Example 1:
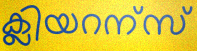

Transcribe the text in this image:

ക്ലിയറന്സ്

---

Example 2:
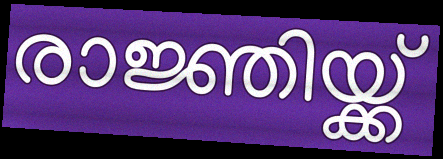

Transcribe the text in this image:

രാജ്ഞിയ്ക്ക്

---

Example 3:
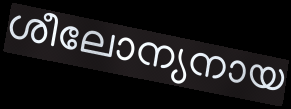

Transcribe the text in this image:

ശീലോന്യനായ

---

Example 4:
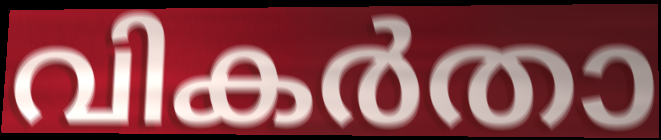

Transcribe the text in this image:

വികർതാ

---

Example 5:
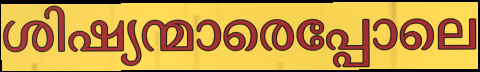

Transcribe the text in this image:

ശിഷ്യന്മാരെപ്പോലെ